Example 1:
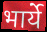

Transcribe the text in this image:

भार्ये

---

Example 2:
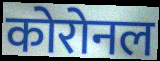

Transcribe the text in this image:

कोरोनल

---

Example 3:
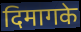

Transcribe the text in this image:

दिमागके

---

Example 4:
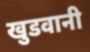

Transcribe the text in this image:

खुडवानी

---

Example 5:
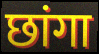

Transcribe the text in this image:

छांगा